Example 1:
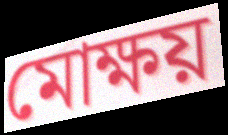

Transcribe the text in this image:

মোক্ষয়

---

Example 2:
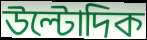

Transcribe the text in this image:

উল্টোদিক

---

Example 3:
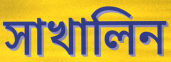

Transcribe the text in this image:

সাখালিন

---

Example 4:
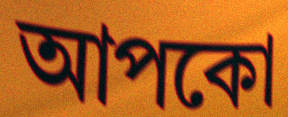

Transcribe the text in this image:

আপকো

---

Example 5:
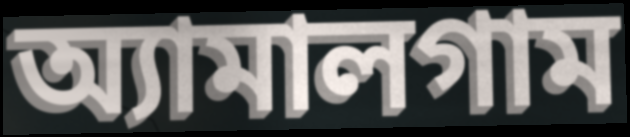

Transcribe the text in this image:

অ্যামালগাম